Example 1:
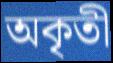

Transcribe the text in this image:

অকৃতী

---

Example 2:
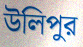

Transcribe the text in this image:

উলিপুর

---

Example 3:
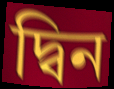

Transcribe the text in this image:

দ্বিন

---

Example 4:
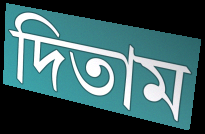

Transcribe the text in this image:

দিতাম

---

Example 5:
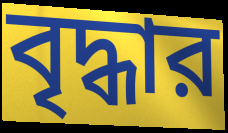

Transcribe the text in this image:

বৃদ্ধার